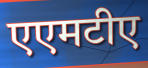
एएमटीए